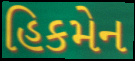
હિકમેન